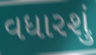
વધારશું